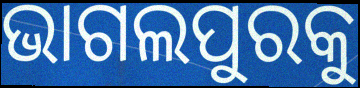
ଭାଗଲପୁରକୁ